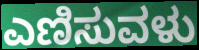
ಎಣಿಸುವಳು